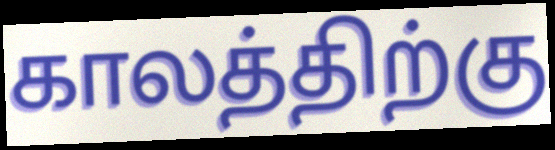
காலத்திற்கு